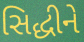
સિદ્ધીને